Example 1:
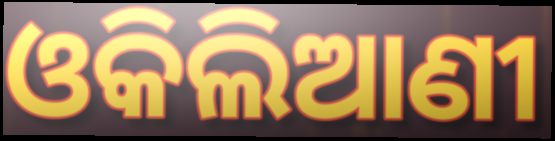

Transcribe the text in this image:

ଓକିଲିଆଣୀ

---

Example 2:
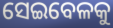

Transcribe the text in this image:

ସେଇବେଳକୁ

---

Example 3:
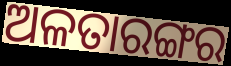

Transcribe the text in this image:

ଅଳତାରଙ୍ଗର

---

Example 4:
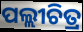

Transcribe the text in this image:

ପଲ୍ଲୀଚିତ୍ର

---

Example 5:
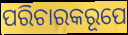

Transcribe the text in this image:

ପରିଚାରକରୂପେ